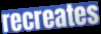
recreates